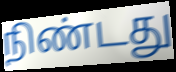
நிண்டது